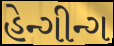
હેન્ગીન્ગ